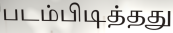
படம்பிடித்தது